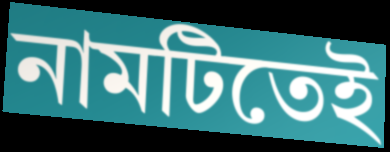
নামটিতেই